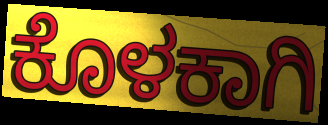
ಕೊಳಕಾಗಿ